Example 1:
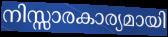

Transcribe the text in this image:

നിസ്സാരകാര്യമായി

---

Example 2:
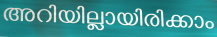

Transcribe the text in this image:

അറിയില്ലായിരിക്കാം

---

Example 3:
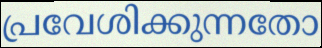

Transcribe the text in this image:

പ്രവേശിക്കുന്നതോ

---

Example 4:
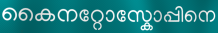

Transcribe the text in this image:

കൈനറ്റോസ്കോപ്പിനെ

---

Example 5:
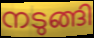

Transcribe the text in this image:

നടുങ്ങി